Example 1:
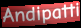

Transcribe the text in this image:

Andipatti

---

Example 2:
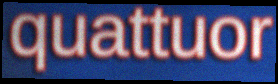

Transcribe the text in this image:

quattuor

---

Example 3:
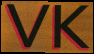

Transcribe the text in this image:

VK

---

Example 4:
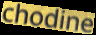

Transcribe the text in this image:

chodine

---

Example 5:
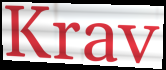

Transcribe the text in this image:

Krav